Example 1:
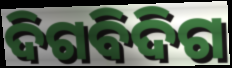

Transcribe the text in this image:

ଦିଗବିଦିଗ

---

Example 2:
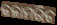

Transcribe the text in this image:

କଳାମରିଚ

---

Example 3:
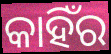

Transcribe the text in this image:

କାହିଁର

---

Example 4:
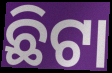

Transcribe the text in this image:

ଛିଟା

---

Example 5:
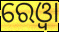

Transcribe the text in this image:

ରେଓ୍ବା